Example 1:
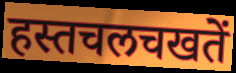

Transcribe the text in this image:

हस्तचलचखतें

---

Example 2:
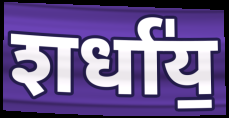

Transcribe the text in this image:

शर्धा॑य॒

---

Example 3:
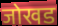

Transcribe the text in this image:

जोखड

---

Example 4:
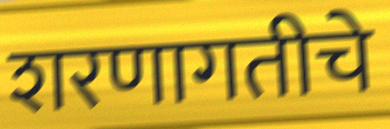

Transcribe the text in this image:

शरणागतीचे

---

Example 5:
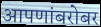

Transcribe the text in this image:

आपणांबरोबर